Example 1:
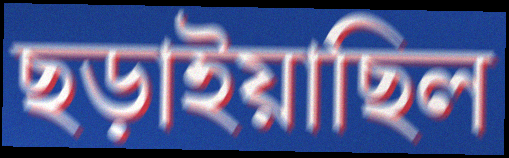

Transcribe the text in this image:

ছড়াইয়াছিল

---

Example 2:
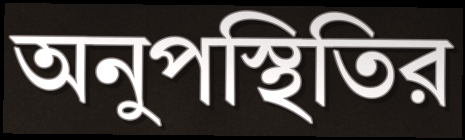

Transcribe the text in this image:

অনুপস্থিতির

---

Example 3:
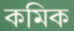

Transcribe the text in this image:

কমিক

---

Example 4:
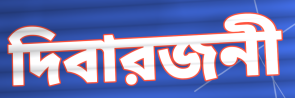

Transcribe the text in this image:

দিবারজনী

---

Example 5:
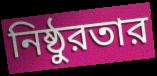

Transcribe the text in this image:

নিষ্ঠুরতার